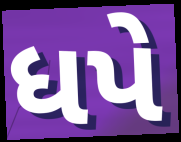
ધપે